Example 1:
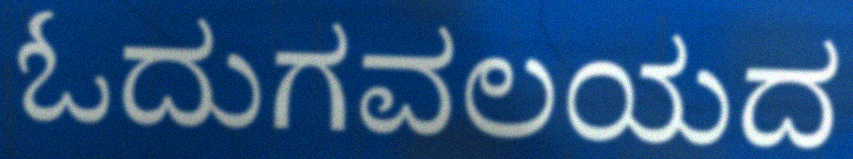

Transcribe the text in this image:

ಓದುಗವಲಯದ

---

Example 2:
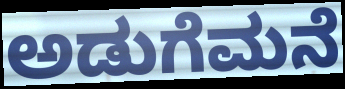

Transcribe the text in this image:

ಅಡುಗೆಮನೆ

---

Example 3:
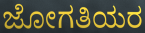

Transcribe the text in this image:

ಜೋಗತಿಯರ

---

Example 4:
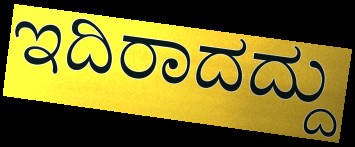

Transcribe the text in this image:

ಇದಿರಾದದ್ದು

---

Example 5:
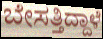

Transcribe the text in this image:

ಬೇಸತ್ತಿದ್ದಾಳೆ